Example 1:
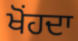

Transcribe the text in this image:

ਖੋਂਹਦਾ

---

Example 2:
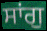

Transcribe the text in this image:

ਸਾਂਗੁ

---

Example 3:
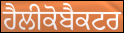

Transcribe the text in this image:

ਹੈਲੀਕੋਬੈਕਟਰ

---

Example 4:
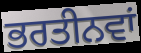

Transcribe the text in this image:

ਭਰਤੀਨਵਾਂ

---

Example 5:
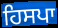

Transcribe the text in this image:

ਹਿਸਪਾ